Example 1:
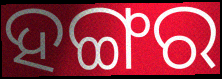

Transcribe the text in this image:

ହଙ୍ଗର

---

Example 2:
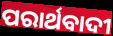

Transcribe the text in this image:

ପରାର୍ଥବାଦୀ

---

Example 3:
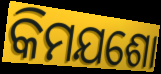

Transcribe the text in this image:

କିମଯଶୋ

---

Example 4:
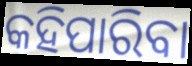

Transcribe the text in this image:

କହିପାରିବା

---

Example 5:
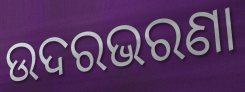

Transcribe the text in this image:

ଉଦରଭରଣା